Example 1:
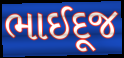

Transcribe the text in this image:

ભાઈદૂજ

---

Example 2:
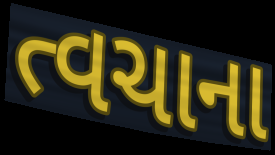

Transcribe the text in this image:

ત્વચાના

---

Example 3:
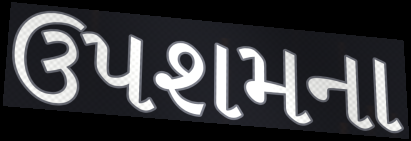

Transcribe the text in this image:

ઉપશમના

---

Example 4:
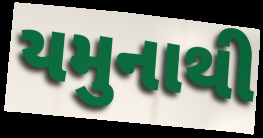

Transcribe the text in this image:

યમુનાથી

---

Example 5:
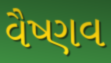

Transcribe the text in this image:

વૈષ્ણવ